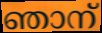
ഞാന്